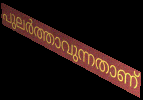
പുലർത്താവുന്നതാണ്